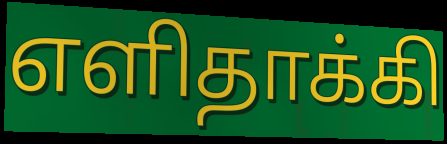
எளிதாக்கி